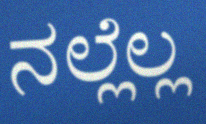
ನಲ್ಲೆಲ್ಲ